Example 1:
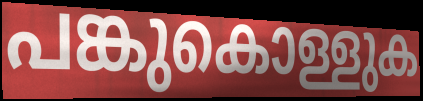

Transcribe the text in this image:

പങ്കുകൊള്ളുക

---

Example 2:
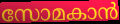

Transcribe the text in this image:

സോമകാൻ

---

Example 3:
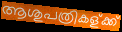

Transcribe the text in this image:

ആശുപത്രികള്ക്ക്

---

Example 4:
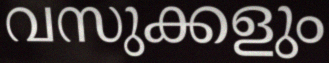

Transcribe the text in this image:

വസുക്കളും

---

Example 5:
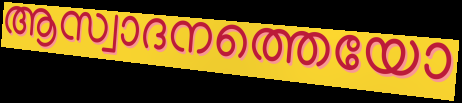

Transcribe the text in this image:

ആസ്വാദനത്തെയോ